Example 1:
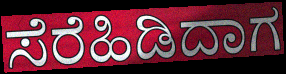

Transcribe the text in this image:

ಸೆರೆಹಿಡಿದಾಗ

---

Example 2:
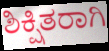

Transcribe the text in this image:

ಶಿಕ್ಷಿತರಾಗಿ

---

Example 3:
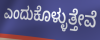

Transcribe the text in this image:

ಎಂದುಕೊಳ್ಳುತ್ತೇವೆ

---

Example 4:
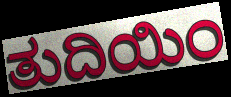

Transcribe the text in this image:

ತುದಿಯಿಂ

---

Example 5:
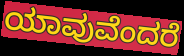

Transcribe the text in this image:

ಯಾವುವೆಂದರೆ